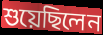
শুয়েছিলেন